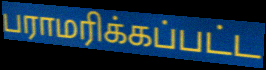
பராமரிக்கப்பட்ட